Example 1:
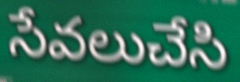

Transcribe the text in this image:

సేవలుచేసి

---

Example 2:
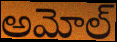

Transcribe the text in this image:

అమోల్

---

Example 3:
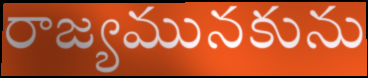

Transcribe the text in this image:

రాజ్యమునకును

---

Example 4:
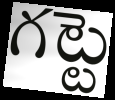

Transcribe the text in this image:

గట్టె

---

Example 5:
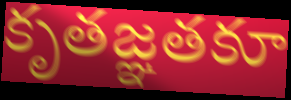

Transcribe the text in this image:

కృతజ్ఞతకూ